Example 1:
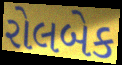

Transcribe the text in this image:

રોલબેક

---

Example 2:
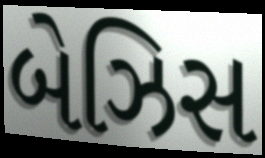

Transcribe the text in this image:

બેઝિસ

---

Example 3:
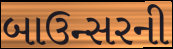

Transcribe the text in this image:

બાઉન્સરની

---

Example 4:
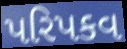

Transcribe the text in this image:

પરિપકવ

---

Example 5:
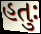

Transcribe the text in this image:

હતુઃ